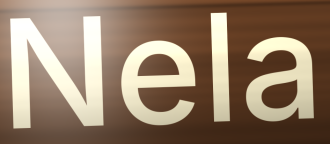
Nela